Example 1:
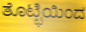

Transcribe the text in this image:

ತೊಟ್ಟಿಯಿಂದ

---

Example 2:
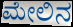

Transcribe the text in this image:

ಮೇಲಿನ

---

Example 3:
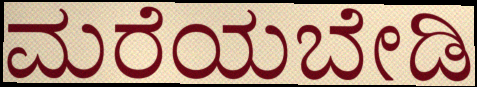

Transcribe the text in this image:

ಮರೆಯಬೇಡಿ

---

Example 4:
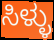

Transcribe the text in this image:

ಸಿಳ್ಳು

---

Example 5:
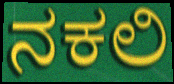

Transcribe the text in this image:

ನಕಲಿ